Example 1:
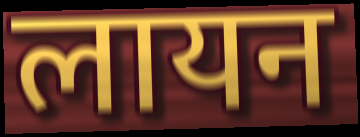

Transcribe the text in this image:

लायन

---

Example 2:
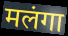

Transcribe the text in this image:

मलंगा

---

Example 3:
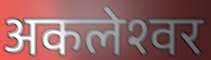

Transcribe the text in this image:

अकलेश्वर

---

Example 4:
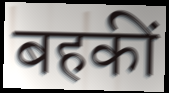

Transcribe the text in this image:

बहकीं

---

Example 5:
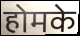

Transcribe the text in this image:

होमके